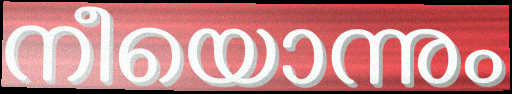
നീയൊന്നും